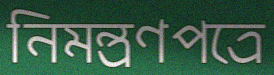
নিমন্ত্রণপত্রে